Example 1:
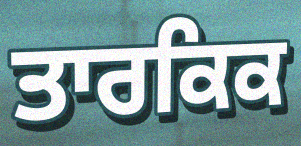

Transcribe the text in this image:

ਤਾਰਕਿਕ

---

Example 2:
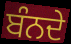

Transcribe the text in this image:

ਬੰਨਦੇ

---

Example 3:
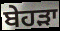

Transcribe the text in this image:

ਬੇਹੜਾ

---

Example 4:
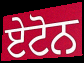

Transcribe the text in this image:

ਏਟੋਨ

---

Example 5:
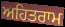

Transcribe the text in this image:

ਅਹਿਤਰਾਮ